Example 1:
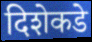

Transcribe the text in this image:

दिशेकडे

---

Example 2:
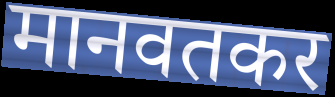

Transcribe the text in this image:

मानवतकर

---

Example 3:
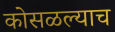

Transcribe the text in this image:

कोसळल्याच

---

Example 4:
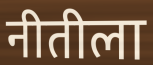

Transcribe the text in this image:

नीतीला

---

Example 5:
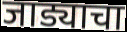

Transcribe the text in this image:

जाड्याचा